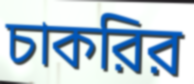
চাকরির